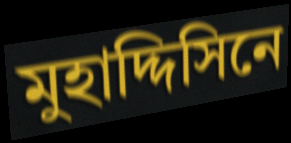
মুহাদ্দিসিনে